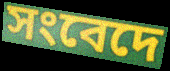
সংবেদে